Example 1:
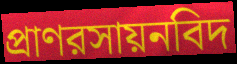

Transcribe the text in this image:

প্রাণরসায়নবিদ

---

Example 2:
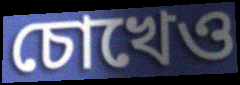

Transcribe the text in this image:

চোখেও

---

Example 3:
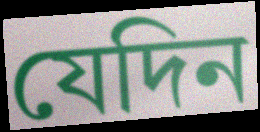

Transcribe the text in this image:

যেদিন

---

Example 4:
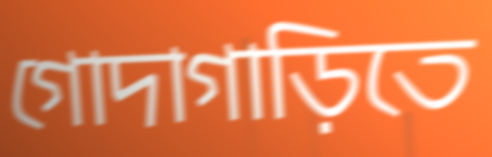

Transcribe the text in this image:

গোদাগাড়িতে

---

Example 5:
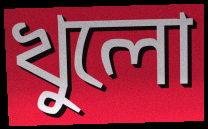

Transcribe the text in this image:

খুলো